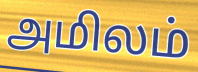
அமிலம்